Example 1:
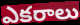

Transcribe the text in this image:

ఎకరాలు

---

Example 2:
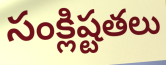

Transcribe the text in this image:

సంక్లిష్టతలు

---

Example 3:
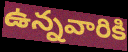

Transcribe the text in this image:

ఉన్నవారికి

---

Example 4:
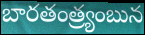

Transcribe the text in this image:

బారతంత్ర్యంబున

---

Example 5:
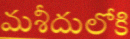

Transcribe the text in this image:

మశీదులోకి